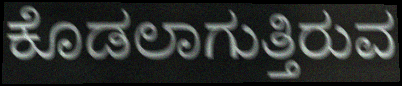
ಕೊಡಲಾಗುತ್ತಿರುವ